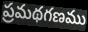
ప్రమథగణము